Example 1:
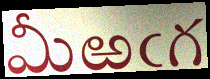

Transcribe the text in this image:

మీఱఁగ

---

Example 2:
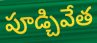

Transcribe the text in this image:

పూడ్చివేత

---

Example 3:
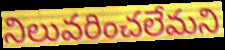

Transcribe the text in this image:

నిలువరించలేమని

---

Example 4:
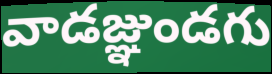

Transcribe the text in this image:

వాడజ్ఞుండగు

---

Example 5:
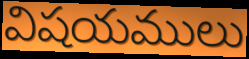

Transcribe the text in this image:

విషయములు